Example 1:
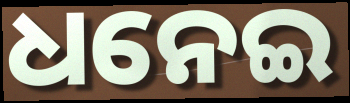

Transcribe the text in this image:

ଧନେଇ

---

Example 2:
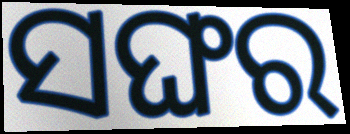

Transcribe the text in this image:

ସଙ୍ଘର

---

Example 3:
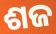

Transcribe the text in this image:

ଶଜ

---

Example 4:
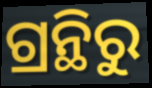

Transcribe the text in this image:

ଗ୍ରନ୍ଥିରୁ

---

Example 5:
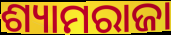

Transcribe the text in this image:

ଶ୍ୟାମରାଜା